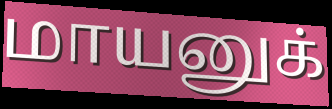
மாயனுக்